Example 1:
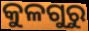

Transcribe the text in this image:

କୁଳଗୁରୁ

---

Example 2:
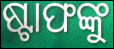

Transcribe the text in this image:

ଷ୍ଟାଫଙ୍କୁ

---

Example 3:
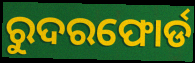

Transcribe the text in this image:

ରୁଦରଫୋର୍ଡ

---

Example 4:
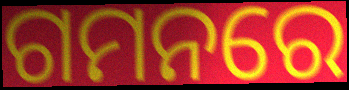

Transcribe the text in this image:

ଗମନରେ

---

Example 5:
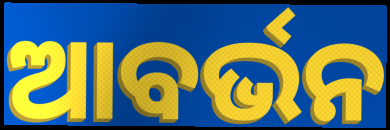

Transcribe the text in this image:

ଆବର୍ଭନ